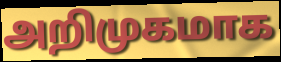
அறிமுகமாக